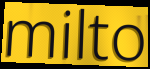
milto